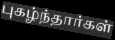
புகழ்ந்தார்கள்